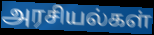
அரசியல்கள்